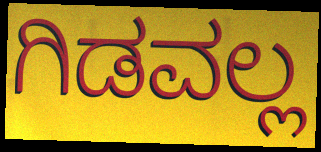
ಗಿಡವಲ್ಲ